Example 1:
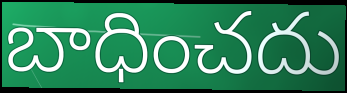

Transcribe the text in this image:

బాధించదు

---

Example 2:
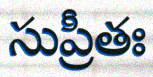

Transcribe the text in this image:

సుప్రీతః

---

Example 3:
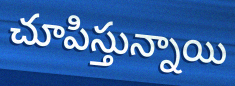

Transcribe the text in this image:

చూపిస్తున్నాయి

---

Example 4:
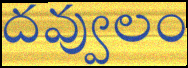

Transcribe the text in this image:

దవ్వులం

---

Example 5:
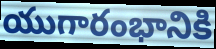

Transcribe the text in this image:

యుగారంభానికి